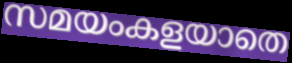
സമയംകളയാതെ